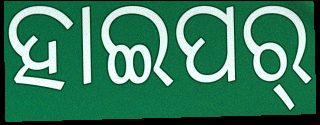
ହାଇପର୍